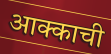
आक्काची